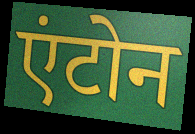
एंटोन